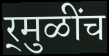
र्मुळींच